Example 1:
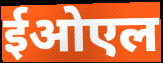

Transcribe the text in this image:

ईओएल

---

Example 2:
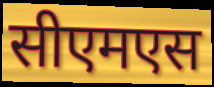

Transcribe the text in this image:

सीएमएस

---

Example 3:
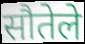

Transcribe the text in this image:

सौतेले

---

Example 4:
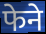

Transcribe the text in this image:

फेने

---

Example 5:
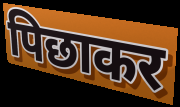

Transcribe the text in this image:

पिछाकर